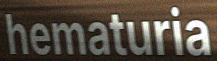
hematuria